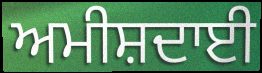
ਅਮੀਸ਼ਦਾਈ